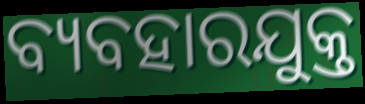
ବ୍ୟବହାରଯୁକ୍ତ